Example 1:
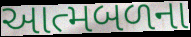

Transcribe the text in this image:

આત્મબળના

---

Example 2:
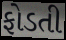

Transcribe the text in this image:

ફોડતી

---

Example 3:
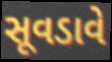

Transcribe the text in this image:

સૂવડાવે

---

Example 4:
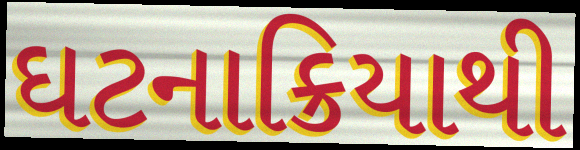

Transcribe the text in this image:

ઘટનાક્રિયાથી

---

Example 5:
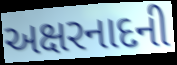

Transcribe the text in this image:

અક્ષરનાદની